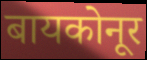
बायकोनूर